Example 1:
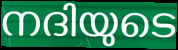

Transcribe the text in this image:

നദിയുടെ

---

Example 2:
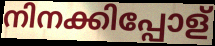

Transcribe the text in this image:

നിനക്കിപ്പോള്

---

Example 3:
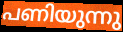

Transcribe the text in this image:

പണിയുന്നു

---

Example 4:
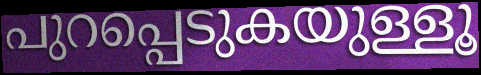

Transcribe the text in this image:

പുറപ്പെടുകയുള്ളൂ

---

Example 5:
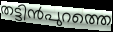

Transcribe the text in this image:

തട്ടിൻപുറത്തെ